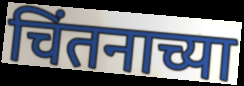
चिंतनाच्या